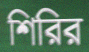
শিরির